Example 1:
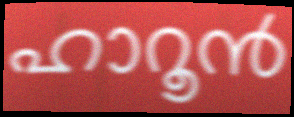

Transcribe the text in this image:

ഹാറൂൻ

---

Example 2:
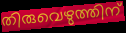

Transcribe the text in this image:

തിരുവെഴുത്തിന്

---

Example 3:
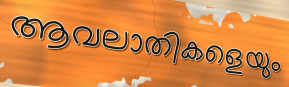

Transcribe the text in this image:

ആവലാതികളെയും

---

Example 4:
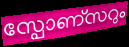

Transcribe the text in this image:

സ്പോണ്സറും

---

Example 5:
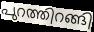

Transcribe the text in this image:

പുറത്തിറങ്ങി